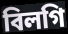
বিলগি